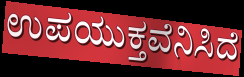
ಉಪಯುಕ್ತವೆನಿಸಿದೆ